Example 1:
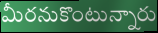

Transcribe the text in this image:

మీరనుకొంటున్నారు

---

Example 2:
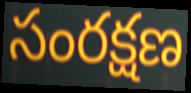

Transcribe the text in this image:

సంరక్షణ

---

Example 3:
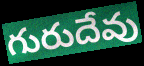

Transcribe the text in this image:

గురుదేవు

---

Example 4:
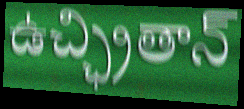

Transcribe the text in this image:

ఉచ్ఛ్రితాన్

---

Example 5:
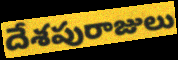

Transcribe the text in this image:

దేశపురాజులు